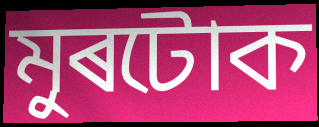
মুৰটোক